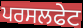
ਪਰਸਲਫੇਟ